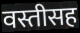
वस्तीसह